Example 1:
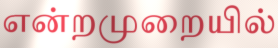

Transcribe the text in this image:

என்றமுறையில்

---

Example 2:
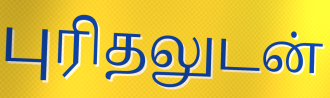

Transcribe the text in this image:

புரிதலுடன்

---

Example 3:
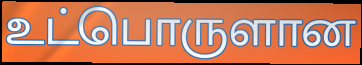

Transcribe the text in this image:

உட்பொருளான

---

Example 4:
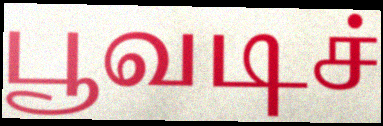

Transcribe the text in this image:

பூவடிச்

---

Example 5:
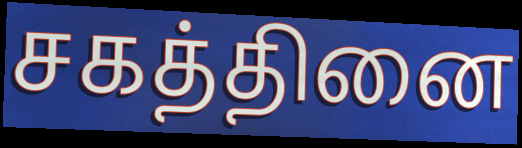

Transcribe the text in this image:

சகத்தினை